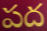
పద